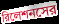
রিলেশনসের